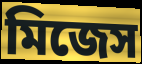
মিজেস